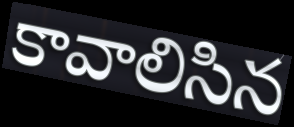
కావాలిసిన